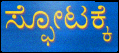
ಸ್ಫೋಟಕ್ಕೆ